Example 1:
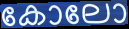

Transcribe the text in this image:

കോലോ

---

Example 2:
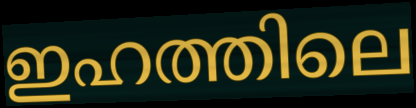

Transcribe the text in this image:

ഇഹത്തിലെ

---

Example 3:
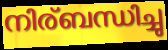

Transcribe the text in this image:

നിര്ബന്ധിച്ചു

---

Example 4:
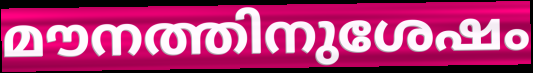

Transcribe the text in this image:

മൗനത്തിനുശേഷം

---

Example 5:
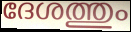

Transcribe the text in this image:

ദേശത്തും